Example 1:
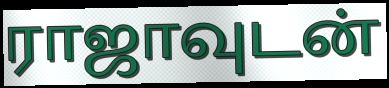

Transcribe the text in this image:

ராஜாவுடன்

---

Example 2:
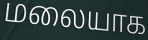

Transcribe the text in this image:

மலையாக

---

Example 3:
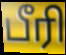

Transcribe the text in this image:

பீரி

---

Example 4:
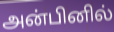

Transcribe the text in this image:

அன்பினில்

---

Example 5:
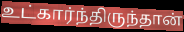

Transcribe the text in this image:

உட்கார்ந்திருந்தான்